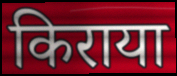
किराया